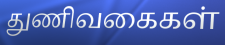
துணிவகைகள்